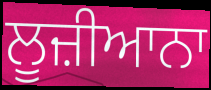
ਲੂਜ਼ੀਆਨਾ